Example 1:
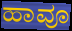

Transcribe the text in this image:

ಹಾವೂ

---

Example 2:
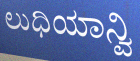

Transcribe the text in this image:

ಲುಧಿಯಾನ್ವಿ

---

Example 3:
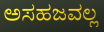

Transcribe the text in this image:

ಅಸಹಜವಲ್ಲ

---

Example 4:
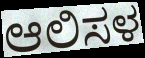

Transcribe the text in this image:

ಆಲಿಸಳ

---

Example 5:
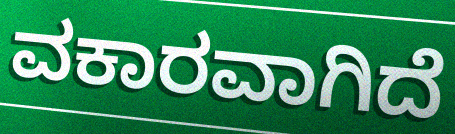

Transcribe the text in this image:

ವಕಾರವಾಗಿದೆ